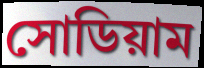
সোডিয়াম